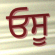
ਓਸੂ